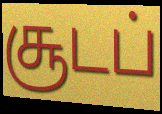
சூடப்